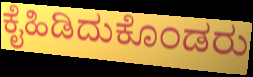
ಕೈಹಿಡಿದುಕೊಂಡರು